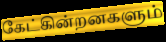
கேட்கின்றனகளும்